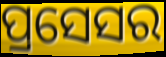
ପ୍ରସେସର